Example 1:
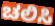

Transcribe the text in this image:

ಚಲಿಸಿ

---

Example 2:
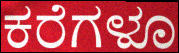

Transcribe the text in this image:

ಕರೆಗಳೂ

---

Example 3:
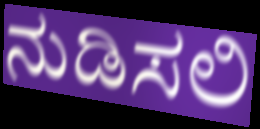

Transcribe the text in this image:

ನುಡಿಸಲಿ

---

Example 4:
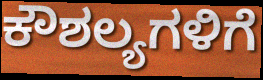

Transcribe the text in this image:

ಕೌಶಲ್ಯಗಳಿಗೆ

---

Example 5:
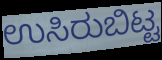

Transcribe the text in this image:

ಉಸಿರುಬಿಟ್ಟ